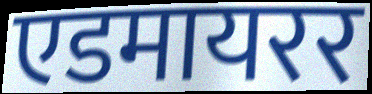
एडमायरर